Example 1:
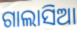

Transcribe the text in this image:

ଗାଲାସିଆ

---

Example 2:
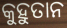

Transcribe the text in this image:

କୁହୁତାନ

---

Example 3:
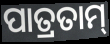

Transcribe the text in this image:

ପାତ୍ରତାମ୍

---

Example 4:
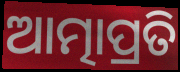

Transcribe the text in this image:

ଆତ୍ମାପ୍ରତି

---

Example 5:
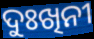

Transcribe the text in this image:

ଦୁଃଖିନୀ